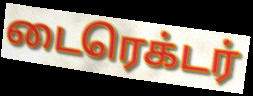
டைரெக்டர்